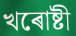
খৰোষ্টী